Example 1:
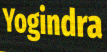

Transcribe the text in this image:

Yogindra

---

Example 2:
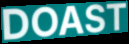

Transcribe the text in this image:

DOAST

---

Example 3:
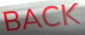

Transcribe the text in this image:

BACK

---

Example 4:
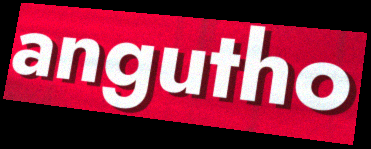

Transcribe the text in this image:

angutho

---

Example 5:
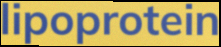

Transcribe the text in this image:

lipoprotein